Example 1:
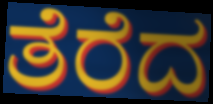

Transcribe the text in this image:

ತೆರೆದ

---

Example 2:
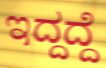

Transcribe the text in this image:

ಇದ್ದದ್ದೆ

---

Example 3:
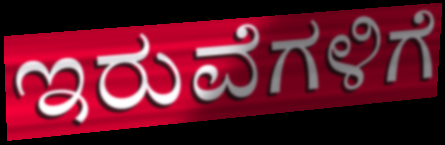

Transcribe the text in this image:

ಇರುವೆಗಳಿಗೆ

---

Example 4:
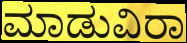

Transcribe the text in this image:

ಮಾಡುವಿರಾ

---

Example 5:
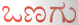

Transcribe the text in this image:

ಒಣಗು